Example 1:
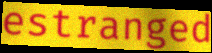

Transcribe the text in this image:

estranged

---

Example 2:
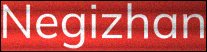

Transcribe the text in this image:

Negizhan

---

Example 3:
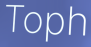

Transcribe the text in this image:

Toph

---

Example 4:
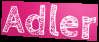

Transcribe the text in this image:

Adler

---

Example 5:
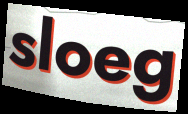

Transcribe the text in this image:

sloeg